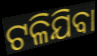
ଟଳିଯିବା